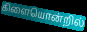
கிளையொன்றில்